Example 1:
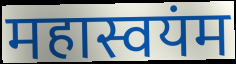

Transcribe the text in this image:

महास्वयंम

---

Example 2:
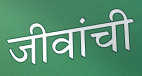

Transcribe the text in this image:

जीवांची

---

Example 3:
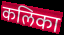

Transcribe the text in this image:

कलिका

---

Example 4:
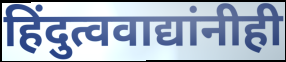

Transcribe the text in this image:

हिंदुत्ववाद्यांनीही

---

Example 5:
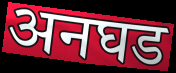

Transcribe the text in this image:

अनघड